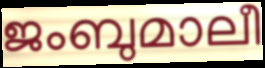
ജംബുമാലീ